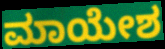
ಮಾಯೇಶ